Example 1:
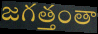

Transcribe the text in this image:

జగత్తంతా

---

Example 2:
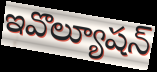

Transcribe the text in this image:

ఇవొల్యూషన్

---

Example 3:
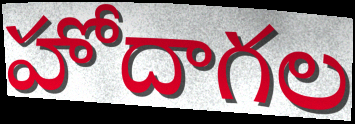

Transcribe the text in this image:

హోదాగల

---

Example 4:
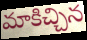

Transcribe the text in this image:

మాకిచ్చిన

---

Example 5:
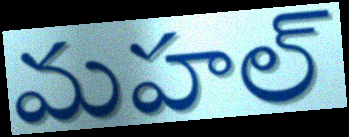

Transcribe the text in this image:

మహల్